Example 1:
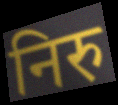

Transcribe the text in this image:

निरु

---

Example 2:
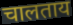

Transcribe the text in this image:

चालताय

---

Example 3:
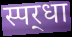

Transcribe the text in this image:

स्पर्धा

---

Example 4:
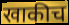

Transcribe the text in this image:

खाकीच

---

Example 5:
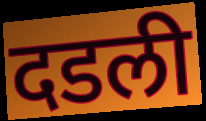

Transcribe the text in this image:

दडली